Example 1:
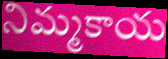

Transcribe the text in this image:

నిమ్మకాయ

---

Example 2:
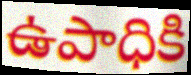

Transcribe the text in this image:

ఉపాధికి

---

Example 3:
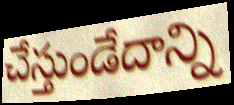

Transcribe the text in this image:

చేస్తుండేదాన్ని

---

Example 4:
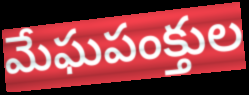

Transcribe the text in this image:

మేఘపంక్తుల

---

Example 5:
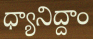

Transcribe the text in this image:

ధ్యానిద్దాం